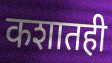
कशातही